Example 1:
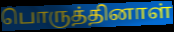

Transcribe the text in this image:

பொருத்தினாள்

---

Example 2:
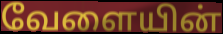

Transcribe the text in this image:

வேளையின்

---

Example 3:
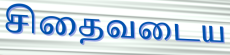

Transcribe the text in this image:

சிதைவடைய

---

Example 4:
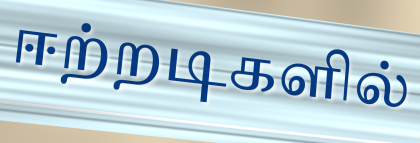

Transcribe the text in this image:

ஈற்றடிகளில்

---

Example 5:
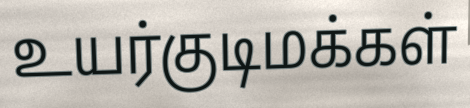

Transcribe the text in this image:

உயர்குடிமக்கள்